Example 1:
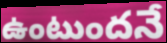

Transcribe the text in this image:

ఉంటుందనే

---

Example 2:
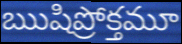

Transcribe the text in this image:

ఋషిప్రోక్తమూ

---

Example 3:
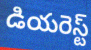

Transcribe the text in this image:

డియరెస్ట్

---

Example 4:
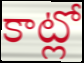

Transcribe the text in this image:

కాట్లో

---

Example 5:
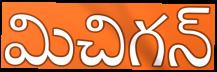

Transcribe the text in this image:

మిచిగన్